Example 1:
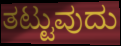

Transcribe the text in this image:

ತಟ್ಟುವುದು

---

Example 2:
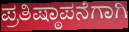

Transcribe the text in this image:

ಪ್ರತಿಷ್ಠಾಪನೆಗಾಗಿ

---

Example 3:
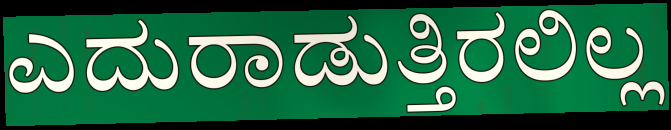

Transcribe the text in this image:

ಎದುರಾಡುತ್ತಿರಲಿಲ್ಲ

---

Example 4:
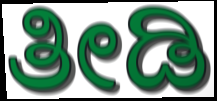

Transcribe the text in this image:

ತೀಡಿ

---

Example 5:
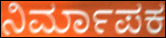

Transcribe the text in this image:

ನಿರ್ಮಾಪಕ